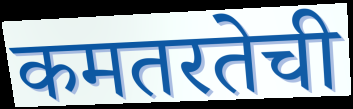
कमतरतेची